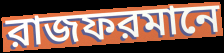
রাজফরমানে